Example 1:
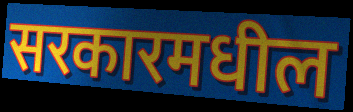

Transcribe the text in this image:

सरकारमधील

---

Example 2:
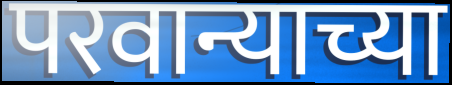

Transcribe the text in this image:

परवान्याच्या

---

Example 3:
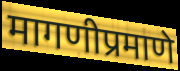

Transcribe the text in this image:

मागणीप्रमाणे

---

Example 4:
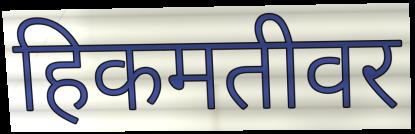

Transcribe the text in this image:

हिकमतीवर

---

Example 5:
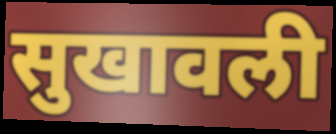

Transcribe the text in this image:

सुखावली